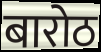
बारोठ